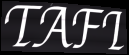
TAFI